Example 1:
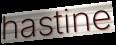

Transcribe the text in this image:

hastine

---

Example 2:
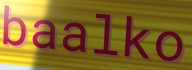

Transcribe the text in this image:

baalko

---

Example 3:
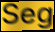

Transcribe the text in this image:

Seg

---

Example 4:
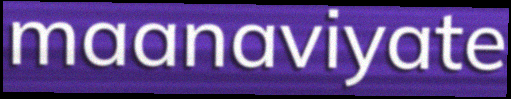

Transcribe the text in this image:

maanaviyate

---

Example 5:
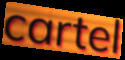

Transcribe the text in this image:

cartel